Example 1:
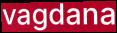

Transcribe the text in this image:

vagdana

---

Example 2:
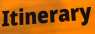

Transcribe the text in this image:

Itinerary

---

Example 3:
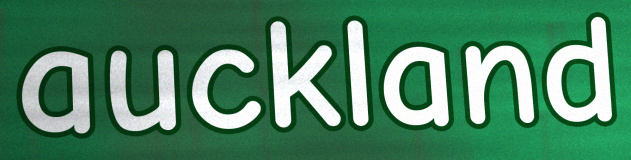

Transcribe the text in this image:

auckland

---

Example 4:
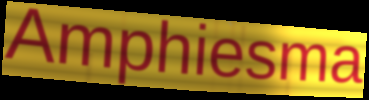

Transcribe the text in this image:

Amphiesma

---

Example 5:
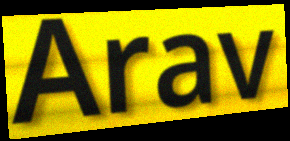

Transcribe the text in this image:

Arav